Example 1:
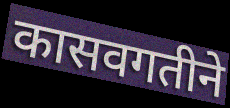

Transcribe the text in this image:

कासवगतीने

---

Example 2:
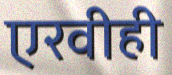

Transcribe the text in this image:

एरवीही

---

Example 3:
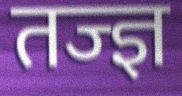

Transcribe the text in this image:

तज्‍ज्ञ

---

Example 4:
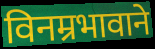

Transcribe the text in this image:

विनम्रभावाने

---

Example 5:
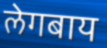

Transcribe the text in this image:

लेगबाय